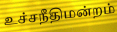
உச்சநீதிமன்றம்